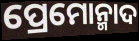
ପ୍ରେମୋନ୍ମାଦ